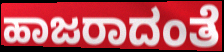
ಹಾಜರಾದಂತೆ